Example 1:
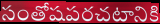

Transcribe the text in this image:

సంతోషపరచటానికి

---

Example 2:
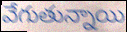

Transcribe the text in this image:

వేగుతున్నాయి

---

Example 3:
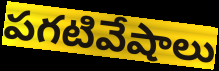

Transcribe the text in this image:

పగటివేషాలు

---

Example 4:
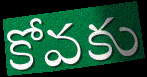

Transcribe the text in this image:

కోవకు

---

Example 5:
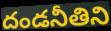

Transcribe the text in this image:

దండనీతిని